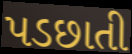
પડછાતી